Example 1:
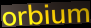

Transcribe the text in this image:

orbium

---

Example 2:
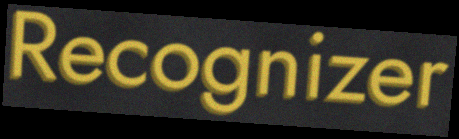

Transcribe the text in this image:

Recognizer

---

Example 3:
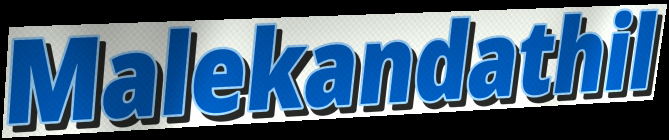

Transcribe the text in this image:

Malekandathil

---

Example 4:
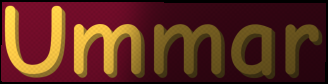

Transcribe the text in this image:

Ummar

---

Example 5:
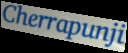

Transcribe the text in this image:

Cherrapunji